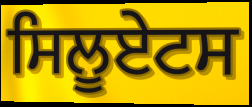
ਸਿਲੂਏਟਸ